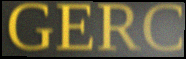
GERC